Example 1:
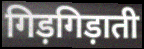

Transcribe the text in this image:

गिड़गिड़ाती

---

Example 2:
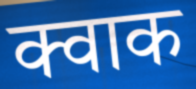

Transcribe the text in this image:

क्वाक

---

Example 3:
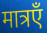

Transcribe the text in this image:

मात्रएँ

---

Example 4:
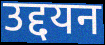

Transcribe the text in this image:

उद्दयन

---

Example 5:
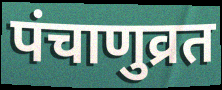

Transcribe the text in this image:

पंचाणुव्रत